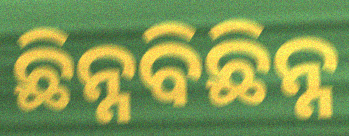
ଛିନ୍ନବିଛିନ୍ନ